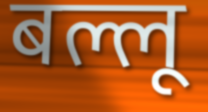
बल्लू